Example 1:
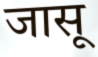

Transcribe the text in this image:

जासू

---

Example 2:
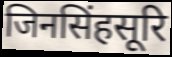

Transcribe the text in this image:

जिनसिंहसूरि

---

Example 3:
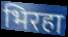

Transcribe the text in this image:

भिरहा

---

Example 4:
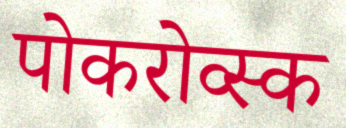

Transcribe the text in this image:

पोकरोव्स्क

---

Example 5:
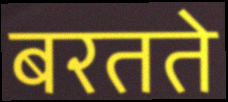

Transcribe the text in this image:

बरतते